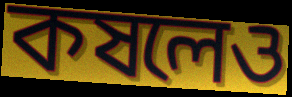
কষলেও